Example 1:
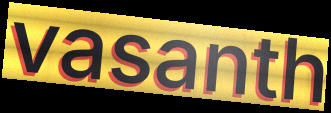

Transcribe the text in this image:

vasanth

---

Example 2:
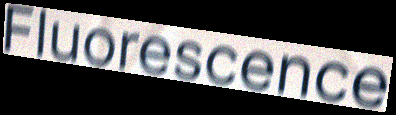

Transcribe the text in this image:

Fluorescence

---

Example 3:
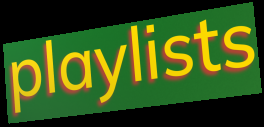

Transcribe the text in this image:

playlists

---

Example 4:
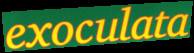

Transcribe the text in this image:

exoculata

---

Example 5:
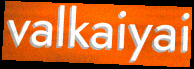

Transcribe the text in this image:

valkaiyai